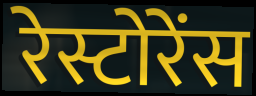
रेस्टोरेंस